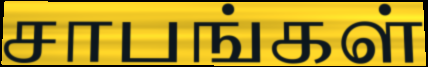
சாபங்கள்